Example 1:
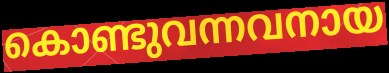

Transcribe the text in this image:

കൊണ്ടുവന്നവനായ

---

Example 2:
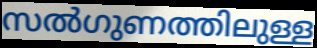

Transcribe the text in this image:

സൽഗുണത്തിലുള്ള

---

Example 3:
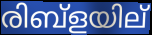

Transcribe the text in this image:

രിബ്ളയില്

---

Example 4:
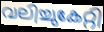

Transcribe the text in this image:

വലിച്ചുകേറ്റി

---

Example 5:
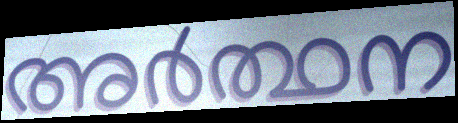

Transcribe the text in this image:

അർത്ഥന